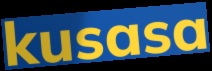
kusasa